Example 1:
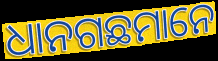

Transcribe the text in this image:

ଧାନଗଛମାନେ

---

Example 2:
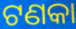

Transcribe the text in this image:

ଟଣକା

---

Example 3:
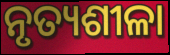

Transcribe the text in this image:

ନୃତ୍ୟଶୀଳା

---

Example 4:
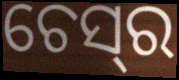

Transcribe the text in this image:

ଚେସ୍‌ର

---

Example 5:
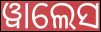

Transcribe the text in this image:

ୱାଲେସ